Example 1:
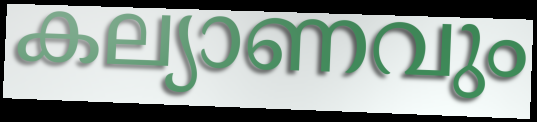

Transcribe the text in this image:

കല്യാണവും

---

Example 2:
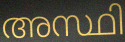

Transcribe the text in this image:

അസ്ഥി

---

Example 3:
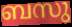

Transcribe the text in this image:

ബസു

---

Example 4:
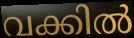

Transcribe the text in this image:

വക്കിൽ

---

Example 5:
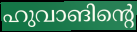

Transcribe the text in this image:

ഹുവാങിന്റെ